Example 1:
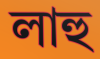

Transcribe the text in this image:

লাহু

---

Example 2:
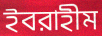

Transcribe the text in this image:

ইবরাহীম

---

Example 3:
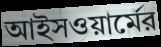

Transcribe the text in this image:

আইসওয়ার্মের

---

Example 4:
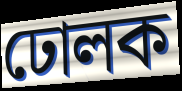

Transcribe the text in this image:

ঢোলক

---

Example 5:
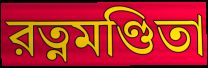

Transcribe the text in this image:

রত্নমণ্ডিতা